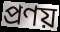
প্ৰণয়